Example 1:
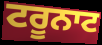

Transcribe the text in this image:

ਟਰੂਨਾਟ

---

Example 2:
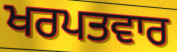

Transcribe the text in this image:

ਖਰਪਤਵਾਰ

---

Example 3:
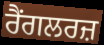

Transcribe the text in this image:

ਰੈਂਗਲਰਜ਼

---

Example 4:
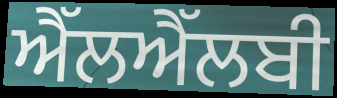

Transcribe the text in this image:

ਐੱਲਐੱਲਬੀ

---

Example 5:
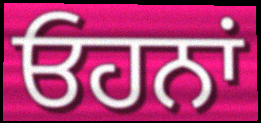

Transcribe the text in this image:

ਓਹਨਾਂ